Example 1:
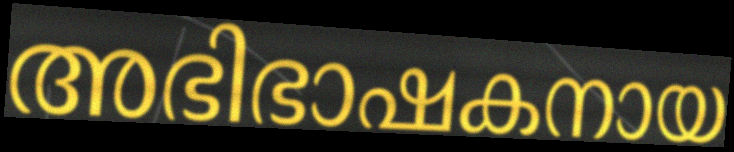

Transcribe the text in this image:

അഭിഭാഷകനായ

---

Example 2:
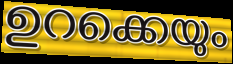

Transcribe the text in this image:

ഉറക്കെയും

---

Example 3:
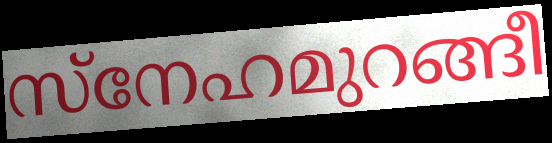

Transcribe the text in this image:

സ്നേഹമുറങ്ങീ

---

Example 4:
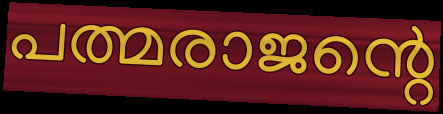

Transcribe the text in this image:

പത്മരാജന്റെ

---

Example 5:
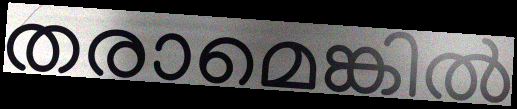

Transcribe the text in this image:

തരാമെങ്കിൽ